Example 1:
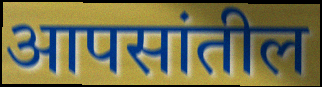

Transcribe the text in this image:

आपसांतील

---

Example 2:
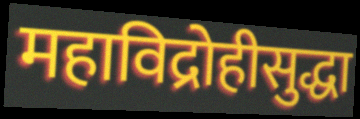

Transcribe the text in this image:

महाविद्रोहीसुद्धा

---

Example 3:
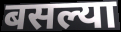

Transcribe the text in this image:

बसल्या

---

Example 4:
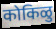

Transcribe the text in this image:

कोकिळु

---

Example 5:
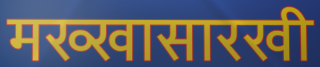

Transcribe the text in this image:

मख्खासारखी